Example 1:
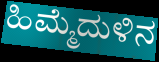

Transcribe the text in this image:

ಹಿಮ್ಮೆದುಳಿನ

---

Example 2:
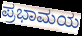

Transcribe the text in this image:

ಪ್ರಭಾಮಯ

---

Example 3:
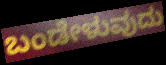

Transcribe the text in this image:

ಬಂಡೇಳುವುದು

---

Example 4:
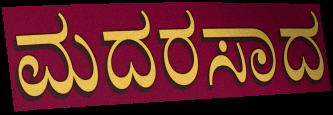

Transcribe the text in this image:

ಮದರಸಾದ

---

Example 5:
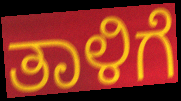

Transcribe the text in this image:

ತಾಳಿಗೆ